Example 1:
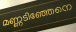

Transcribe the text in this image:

മണ്ണടിഞ്ഞേനെ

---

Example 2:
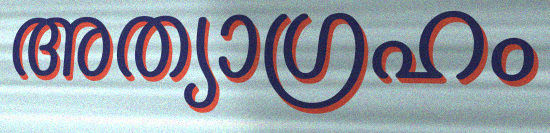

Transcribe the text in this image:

അത്യാഗ്രഹം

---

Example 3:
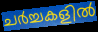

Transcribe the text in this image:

ചർച്ചകളിൽ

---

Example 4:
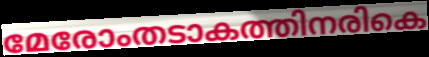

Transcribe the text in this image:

മേരോംതടാകത്തിനരികെ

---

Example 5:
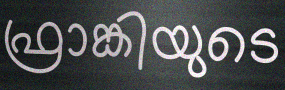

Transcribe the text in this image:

ഫ്രാങ്കിയുടെ